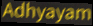
Adhyayam